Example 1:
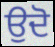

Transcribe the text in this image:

ਉਦੋ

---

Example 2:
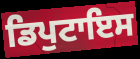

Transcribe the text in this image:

ਡਿਪੁਟਾਇਸ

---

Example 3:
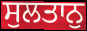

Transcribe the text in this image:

ਸੁਲਤਾਨੁ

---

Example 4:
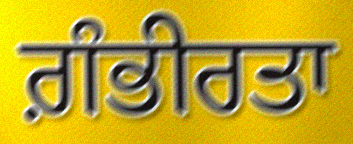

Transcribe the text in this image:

ਗ਼ੰਭੀਰਤਾ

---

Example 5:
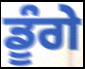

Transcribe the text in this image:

ਡੂੰਗੇ